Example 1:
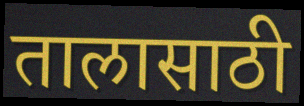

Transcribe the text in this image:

तालासाठी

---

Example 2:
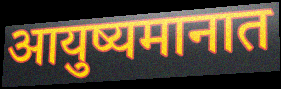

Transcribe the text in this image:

आयुष्यमानात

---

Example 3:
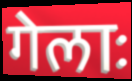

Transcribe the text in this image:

गेलाः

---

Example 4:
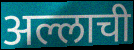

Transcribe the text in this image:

अल्लाची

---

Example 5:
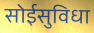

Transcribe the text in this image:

सोईसुविधा